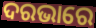
ଦରଭାରେ